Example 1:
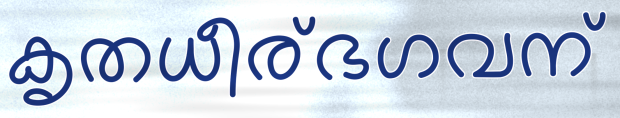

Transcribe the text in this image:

കൃതധീര്ഭഗവന്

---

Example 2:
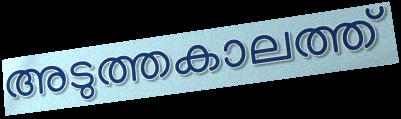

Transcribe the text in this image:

അടുത്തകാലത്ത്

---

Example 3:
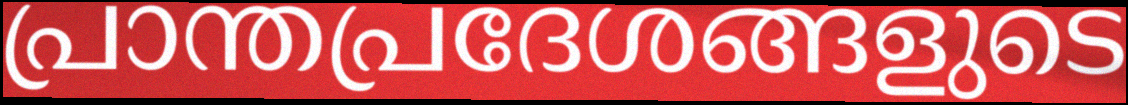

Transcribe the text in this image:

പ്രാന്തപ്രദേശങ്ങളുടെ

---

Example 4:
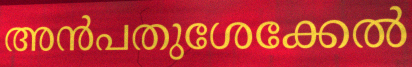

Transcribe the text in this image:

അൻപതുശേക്കേൽ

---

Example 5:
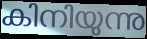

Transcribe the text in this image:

കിനിയുന്നു